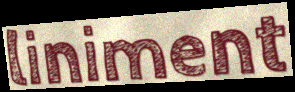
liniment